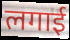
लगाई